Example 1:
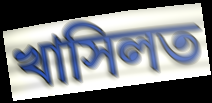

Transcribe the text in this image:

খাসিলত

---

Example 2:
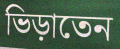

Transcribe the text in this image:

ভিড়াতেন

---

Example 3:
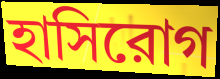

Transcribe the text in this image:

হাসিরোগ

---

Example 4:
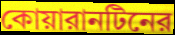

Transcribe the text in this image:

কোয়ারানটিনের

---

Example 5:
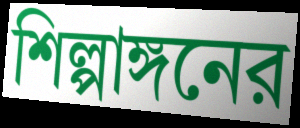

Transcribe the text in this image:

শিল্পাঙ্গনের